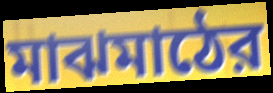
মাঝমাঠের